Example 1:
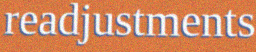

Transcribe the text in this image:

readjustments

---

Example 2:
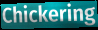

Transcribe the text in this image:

Chickering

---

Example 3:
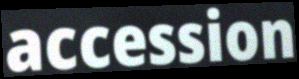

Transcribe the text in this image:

accession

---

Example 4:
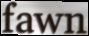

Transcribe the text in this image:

fawn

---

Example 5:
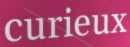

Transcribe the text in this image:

curieux